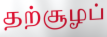
தற்சூழப்